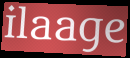
ilaage